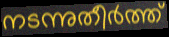
നടന്നുതീർത്ത്